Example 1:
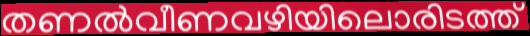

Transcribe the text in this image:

തണൽവീണവഴിയിലൊരിടത്ത്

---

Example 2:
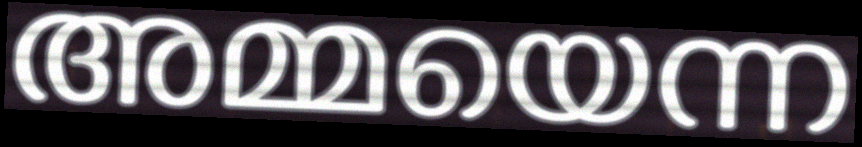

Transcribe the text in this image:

അമ്മയെന്ന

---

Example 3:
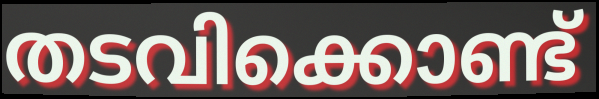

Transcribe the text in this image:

തടവിക്കൊണ്ട്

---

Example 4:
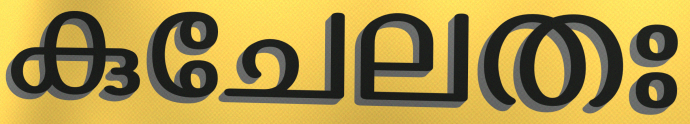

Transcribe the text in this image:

കുചേലതഃ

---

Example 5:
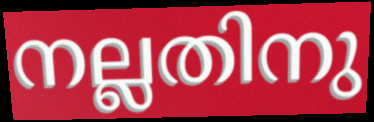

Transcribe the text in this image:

നല്ലതിനു